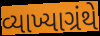
વ્યાખ્યાગ્રંથે